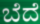
ಬೆದೆ